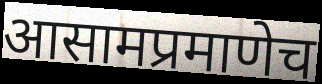
आसामप्रमाणेच